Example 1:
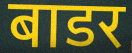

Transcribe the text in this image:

बाडर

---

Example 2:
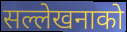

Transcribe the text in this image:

सल्लेखनाको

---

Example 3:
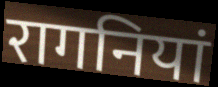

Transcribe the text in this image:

रागनियां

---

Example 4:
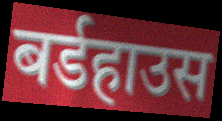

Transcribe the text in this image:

बर्डहाउस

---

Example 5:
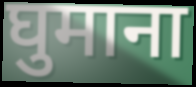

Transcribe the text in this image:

घुमाना